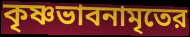
কৃষ্ণভাবনামৃতের